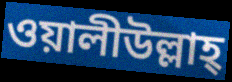
ওয়ালীউল্লাহ্